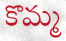
కొమ్మ